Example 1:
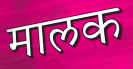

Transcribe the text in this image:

मालक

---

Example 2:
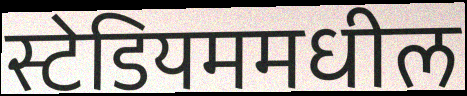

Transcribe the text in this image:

स्टेडियममधील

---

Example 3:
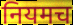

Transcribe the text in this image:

नियमच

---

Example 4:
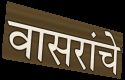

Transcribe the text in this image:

वासरांचे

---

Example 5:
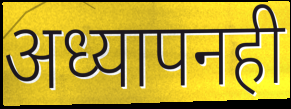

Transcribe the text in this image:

अध्यापनही